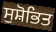
ਸੁਸ਼ੋਭਿਤ